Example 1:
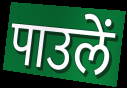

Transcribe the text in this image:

पाउलें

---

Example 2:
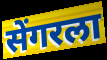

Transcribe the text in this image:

सेंगरला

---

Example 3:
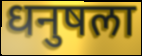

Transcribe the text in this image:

धनुषला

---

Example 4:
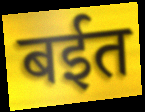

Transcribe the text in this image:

बईत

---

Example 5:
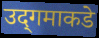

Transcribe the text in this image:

उद्‌गमाकडे